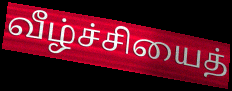
வீழ்ச்சியைத்